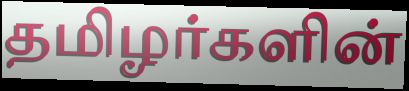
தமிழர்களின்